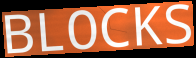
BLOCKS